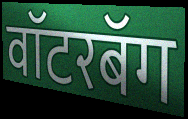
वॉटरबॅग